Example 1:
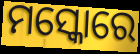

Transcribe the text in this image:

ମସ୍କୋରେ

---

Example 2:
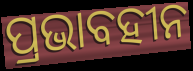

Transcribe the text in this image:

ପ୍ରଭାବହୀନ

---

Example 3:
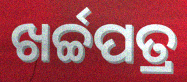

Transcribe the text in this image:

ଖର୍ଚ୍ଚପତ୍ର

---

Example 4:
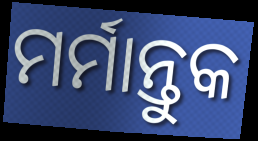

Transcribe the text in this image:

ମର୍ମାନ୍ତୁକ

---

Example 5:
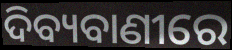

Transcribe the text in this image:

ଦିବ୍ୟବାଣୀରେ